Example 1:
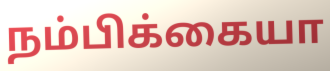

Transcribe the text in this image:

நம்பிக்கையா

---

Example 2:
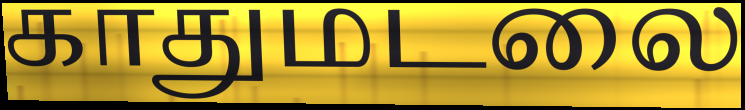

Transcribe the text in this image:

காதுமடலை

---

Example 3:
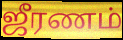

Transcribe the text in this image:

ஜீரணம்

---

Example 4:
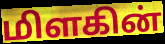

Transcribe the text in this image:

மிளகின்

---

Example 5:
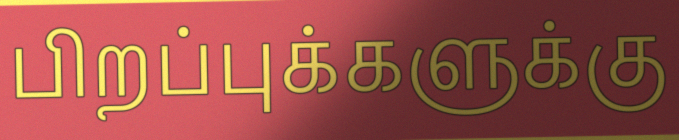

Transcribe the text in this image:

பிறப்புக்களுக்கு